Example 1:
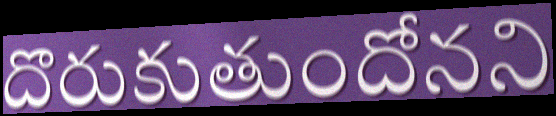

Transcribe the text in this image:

దొరుకుతుందోనని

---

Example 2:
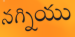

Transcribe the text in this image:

నగ్నియు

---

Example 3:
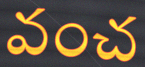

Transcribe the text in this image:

వంచ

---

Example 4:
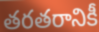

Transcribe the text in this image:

తరతరానికీ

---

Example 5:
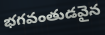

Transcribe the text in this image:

భగవంతుడవైన